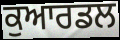
ਕੁਆਰਡਲ